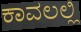
ಕಾವಲಲ್ಲಿ